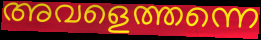
അവളെത്തന്നെ